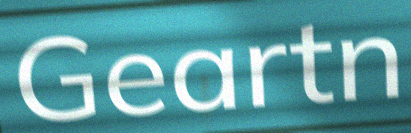
Geartn